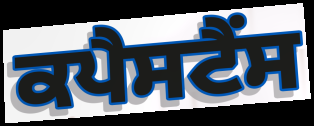
ਕਪੈਸਟੈਂਸ